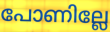
പോണില്ലേ